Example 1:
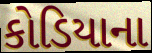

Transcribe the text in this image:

કોડિયાના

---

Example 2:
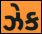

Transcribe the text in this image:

ઝેક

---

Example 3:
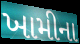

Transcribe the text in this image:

ખામીના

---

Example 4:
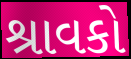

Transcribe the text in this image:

શ્રાવકો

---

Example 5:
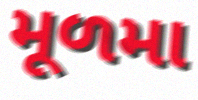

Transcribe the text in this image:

મૂળમા